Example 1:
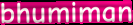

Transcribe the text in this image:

bhumiman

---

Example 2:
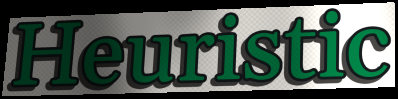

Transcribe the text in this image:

Heuristic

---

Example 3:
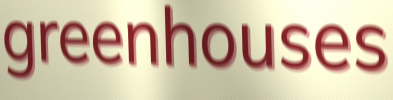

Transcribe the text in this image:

greenhouses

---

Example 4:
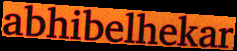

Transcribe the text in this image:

abhibelhekar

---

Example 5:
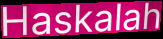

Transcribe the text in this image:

Haskalah